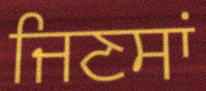
ਜਿਣਸਾਂ